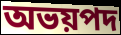
অভয়পদ